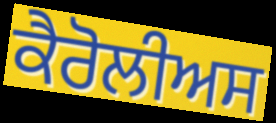
ਕੈਰੋਲੀਅਸ